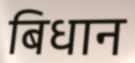
बिधान